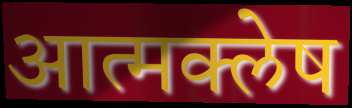
आत्मक्लेष